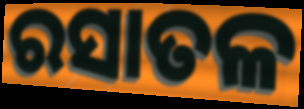
ରସାତଳ